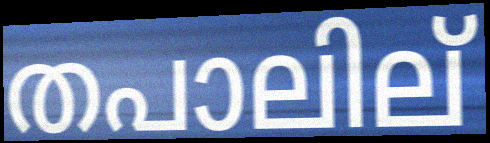
തപാലില്